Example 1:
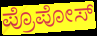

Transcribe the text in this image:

ಪ್ರೊಪೋಸ್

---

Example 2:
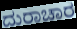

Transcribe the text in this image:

ದುರಾಚಾರ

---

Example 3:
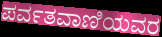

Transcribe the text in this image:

ಪರ್ವತವಾಣಿಯವರ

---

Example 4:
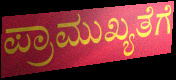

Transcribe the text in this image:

ಪ್ರಾಮುಖ್ಯತೆಗೆ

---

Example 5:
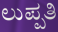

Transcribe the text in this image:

ಲುಪ್ಪತಿ